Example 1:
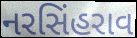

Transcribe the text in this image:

નરસિંહરાવ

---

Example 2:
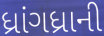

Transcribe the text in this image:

ધ્રાંગધ્રાની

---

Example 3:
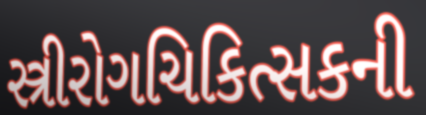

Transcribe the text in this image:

સ્ત્રીરોગચિકિત્સકની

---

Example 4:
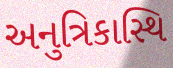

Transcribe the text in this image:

અનુત્રિકાસ્થિ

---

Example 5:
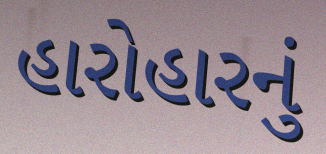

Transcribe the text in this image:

હારોહારનું